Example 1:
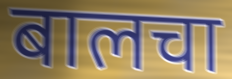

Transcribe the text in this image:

बालचा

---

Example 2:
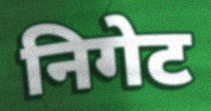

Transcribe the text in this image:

निगेट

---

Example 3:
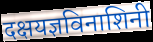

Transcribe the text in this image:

दक्षयज्ञविनाशिनी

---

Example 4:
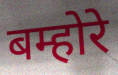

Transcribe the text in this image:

बम्होरे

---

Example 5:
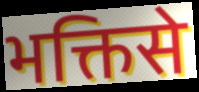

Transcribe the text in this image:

भक्तिसे